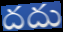
దదు